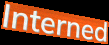
Interned